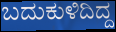
ಬದುಕುಳಿದಿದ್ದ